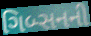
ગિબ્સનની